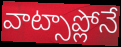
వాట్సాప్లోనే